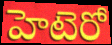
హెటెరో